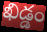
ఖిడ్డం